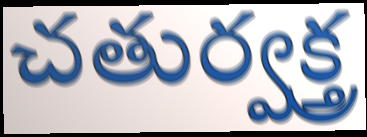
చతుర్వక్త్ర